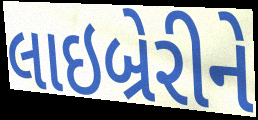
લાઇબ્રેરીને